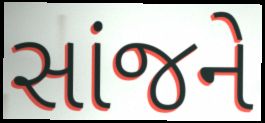
સાંજને